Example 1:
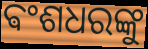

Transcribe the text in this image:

ଵଂଶଧରଙ୍କୁ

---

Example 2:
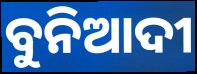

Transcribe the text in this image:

ବୁନିଆଦୀ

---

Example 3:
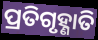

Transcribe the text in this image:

ପ୍ରତିଗୃହ୍ଣାତି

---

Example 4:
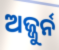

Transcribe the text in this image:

ଅଜ୍ଜୁର୍ନ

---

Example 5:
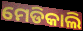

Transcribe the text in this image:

ମେଡିକାଲି